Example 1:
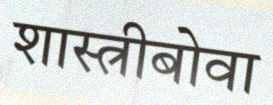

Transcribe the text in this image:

शास्त्रीबोवा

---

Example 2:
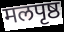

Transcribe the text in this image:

मलपृष्ठ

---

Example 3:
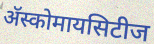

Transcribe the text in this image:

ॲस्कोमायसिटीज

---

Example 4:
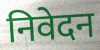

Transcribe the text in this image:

निवेदन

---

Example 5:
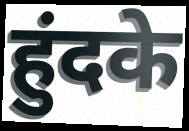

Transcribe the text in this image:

हुंदके